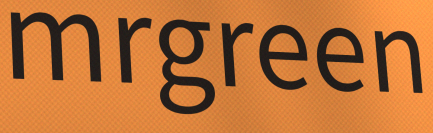
mrgreen